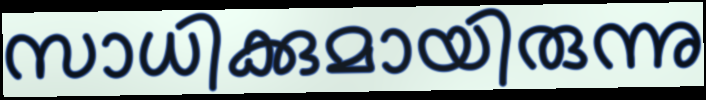
സാധിക്കുമായിരുന്നു